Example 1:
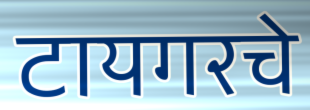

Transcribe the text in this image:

टायगरचे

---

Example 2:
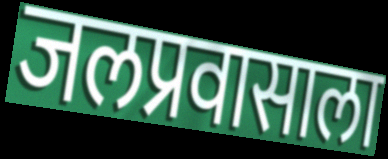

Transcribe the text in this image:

जलप्रवासाला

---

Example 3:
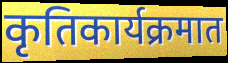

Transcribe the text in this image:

कृतिकार्यक्रमात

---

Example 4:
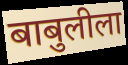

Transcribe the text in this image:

बाबुलीला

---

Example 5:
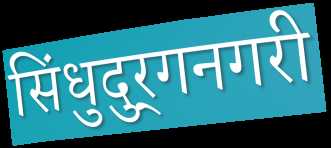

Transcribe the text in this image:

सिंधुदुर्गनगरी